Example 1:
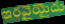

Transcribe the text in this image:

ఇరవైయైదు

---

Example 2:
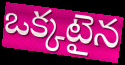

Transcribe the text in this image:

ఒక్కటైన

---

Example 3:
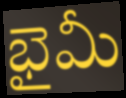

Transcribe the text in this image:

భైమీ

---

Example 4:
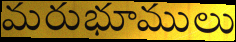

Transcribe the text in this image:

మరుభూములు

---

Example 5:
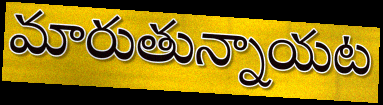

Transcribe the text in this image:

మారుతున్నాయట